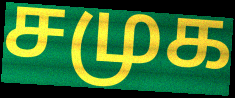
சமுக